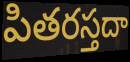
పితరస్తదా